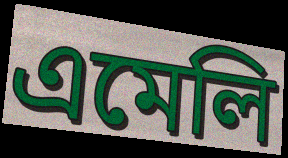
এমেলি